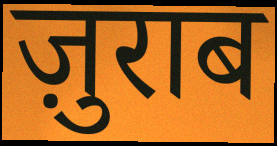
ज़ुराब